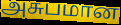
அசுபமான